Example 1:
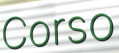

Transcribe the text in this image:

Corso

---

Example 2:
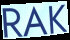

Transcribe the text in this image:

RAK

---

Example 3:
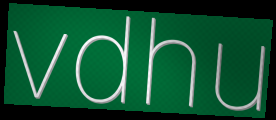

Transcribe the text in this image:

vdhu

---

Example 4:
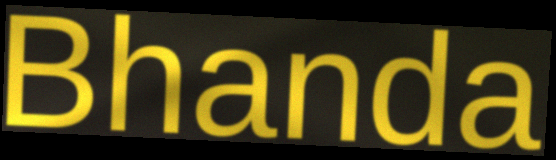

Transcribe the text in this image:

Bhanda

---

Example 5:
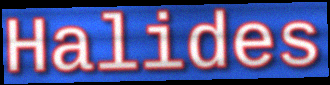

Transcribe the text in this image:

Halides